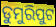
ଡୁମୁରିପୁଟ